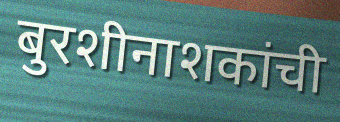
बुरशीनाशकांची